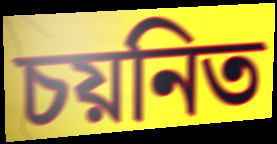
চয়নিত